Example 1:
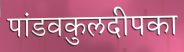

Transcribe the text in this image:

पांडवकुलदीपका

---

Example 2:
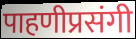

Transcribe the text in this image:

पाहणीप्रसंगी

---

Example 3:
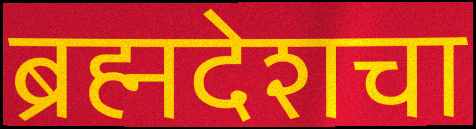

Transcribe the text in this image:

ब्रह्मदेशचा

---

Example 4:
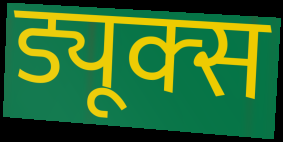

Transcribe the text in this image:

ड्यूक्‍स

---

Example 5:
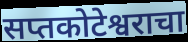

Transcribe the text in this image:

सप्तकोटेश्वराचा